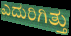
ಎದುರಿಗಿತ್ತು